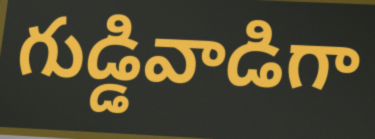
గుడ్డివాడిగా